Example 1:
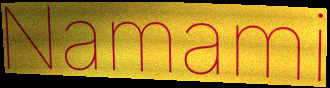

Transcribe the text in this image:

Namami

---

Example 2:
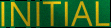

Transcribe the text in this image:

INITIAL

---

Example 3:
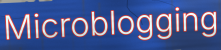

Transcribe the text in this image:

Microblogging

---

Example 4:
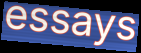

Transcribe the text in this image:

essays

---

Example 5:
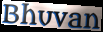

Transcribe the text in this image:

Bhuvan